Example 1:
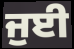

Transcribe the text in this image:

ਜੁਈ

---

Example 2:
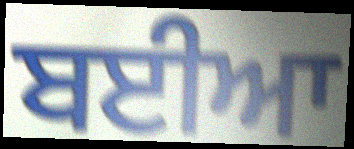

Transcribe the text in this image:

ਬਈਆ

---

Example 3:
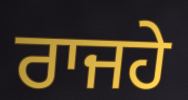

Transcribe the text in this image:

ਰਾਜਹੇ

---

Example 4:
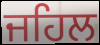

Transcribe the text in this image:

ਜਹਿਲ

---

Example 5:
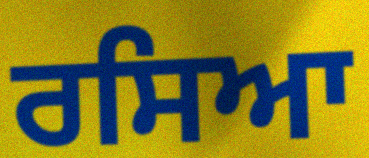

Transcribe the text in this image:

ਰਸਿਆ